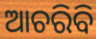
ଆଚରିବି